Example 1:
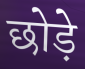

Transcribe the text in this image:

छोड़े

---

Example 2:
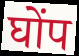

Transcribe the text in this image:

घोंप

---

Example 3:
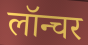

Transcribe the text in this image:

लॉन्चर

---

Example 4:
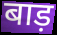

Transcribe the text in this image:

बाड़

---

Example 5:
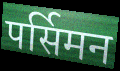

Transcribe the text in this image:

पर्सिमन